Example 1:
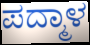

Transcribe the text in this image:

ಪದ್ಮಾಳ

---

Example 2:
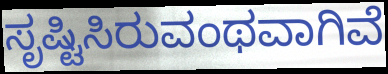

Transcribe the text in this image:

ಸೃಷ್ಟಿಸಿರುವಂಥವಾಗಿವೆ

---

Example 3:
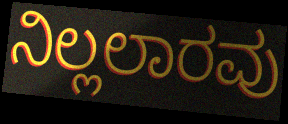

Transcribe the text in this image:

ನಿಲ್ಲಲಾರವು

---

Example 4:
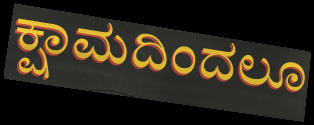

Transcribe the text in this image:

ಕ್ಷಾಮದಿಂದಲೂ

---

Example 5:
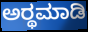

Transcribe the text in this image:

ಅರ್‍ಥಮಾಡಿ